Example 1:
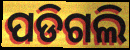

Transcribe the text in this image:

ପଡିଗଲି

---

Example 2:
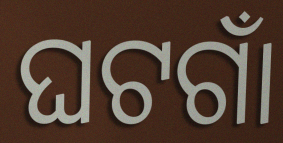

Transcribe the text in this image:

ଘଟଗାଁ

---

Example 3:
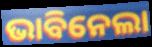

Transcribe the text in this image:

ଭାବିନେଲା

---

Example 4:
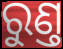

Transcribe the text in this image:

ରୁଣ୍ତ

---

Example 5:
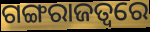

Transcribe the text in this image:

ଗଙ୍ଗରାଜତ୍ୱରେ